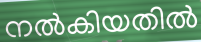
നൽകിയതിൽ